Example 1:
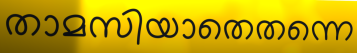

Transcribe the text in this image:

താമസിയാതെതന്നെ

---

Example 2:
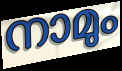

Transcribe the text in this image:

നാമും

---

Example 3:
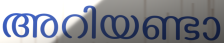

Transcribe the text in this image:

അറിയണ്ടാ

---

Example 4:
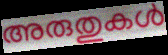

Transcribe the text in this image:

അരുതുകൾ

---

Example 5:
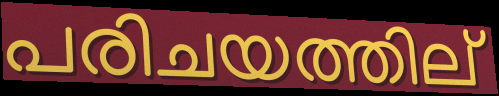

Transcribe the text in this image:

പരിചയത്തില്